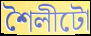
শৈলীটো